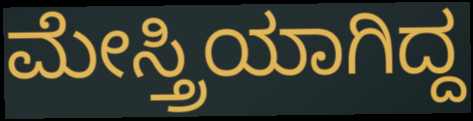
ಮೇಸ್ತ್ರಿಯಾಗಿದ್ದ